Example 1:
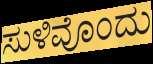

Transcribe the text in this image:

ಸುಳಿವೊಂದು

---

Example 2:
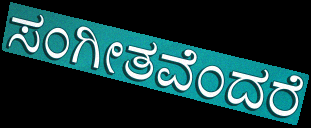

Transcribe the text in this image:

ಸಂಗೀತವೆಂದರೆ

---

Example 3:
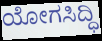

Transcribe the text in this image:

ಯೋಗಸಿದ್ಧಿ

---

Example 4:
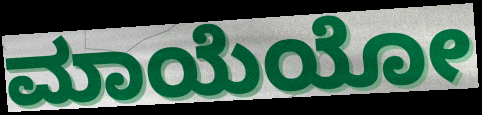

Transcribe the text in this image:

ಮಾಯೆಯೋ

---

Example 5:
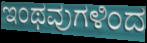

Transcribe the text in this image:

ಇಂಥವುಗಳಿಂದ